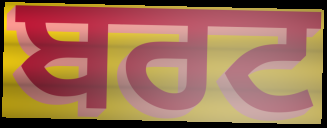
ਬਰਟ